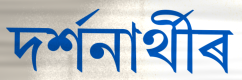
দৰ্শনাৰ্থীৰ